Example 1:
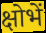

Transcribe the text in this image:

क्षोभें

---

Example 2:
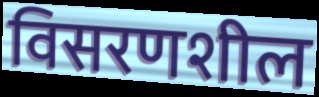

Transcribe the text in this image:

विसरणशील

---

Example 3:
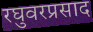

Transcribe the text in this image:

रघुवरप्रसाद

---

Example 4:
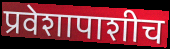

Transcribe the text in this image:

प्रवेशापाशीच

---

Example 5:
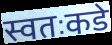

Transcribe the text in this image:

स्वतःकडे